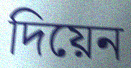
দিয়েন